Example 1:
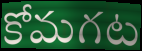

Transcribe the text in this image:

కోమగట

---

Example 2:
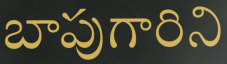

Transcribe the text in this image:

బాపుగారిని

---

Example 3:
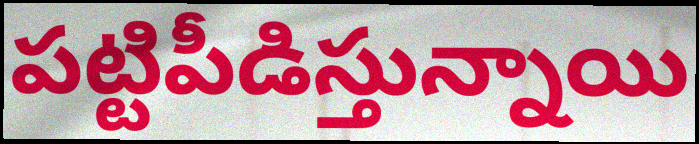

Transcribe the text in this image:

పట్టిపీడిస్తున్నాయి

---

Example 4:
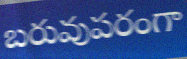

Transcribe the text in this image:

బరువుపరంగా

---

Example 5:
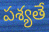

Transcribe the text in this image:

పశ్యతే